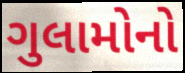
ગુલામોનો